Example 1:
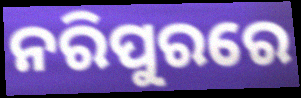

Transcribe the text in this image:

ନରିପୁରରେ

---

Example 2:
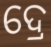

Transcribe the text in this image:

ଦ୍ରେ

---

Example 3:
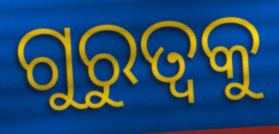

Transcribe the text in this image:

ଗୁରୁତ୍ବକୁ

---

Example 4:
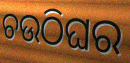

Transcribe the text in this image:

ଚଉଠିଘର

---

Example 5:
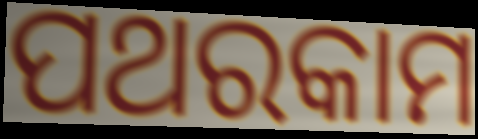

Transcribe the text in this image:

ପଥରକାମ